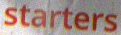
starters